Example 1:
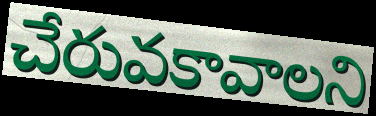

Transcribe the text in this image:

చేరువకావాలని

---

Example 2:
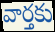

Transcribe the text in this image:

వార్తకు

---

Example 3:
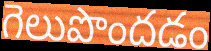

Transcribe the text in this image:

గెలుపొందడం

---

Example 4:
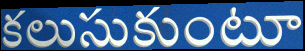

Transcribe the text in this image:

కలుసుకుంటూ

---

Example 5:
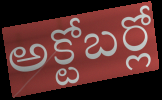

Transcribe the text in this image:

అక్టోబర్లో